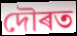
দৌৰত